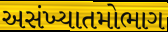
અસંખ્યાતમોભાગ